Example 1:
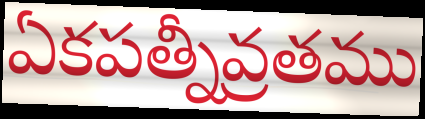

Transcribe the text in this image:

ఏకపత్నీవ్రతము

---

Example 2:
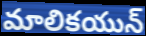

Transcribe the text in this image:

మాలికయున్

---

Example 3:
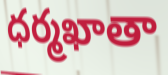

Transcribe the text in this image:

ధర్మఖాతా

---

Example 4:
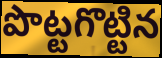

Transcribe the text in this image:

పొట్టగొట్టిన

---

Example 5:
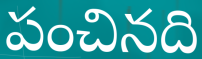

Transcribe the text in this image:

పంచినది